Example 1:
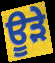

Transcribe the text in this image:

ਊੜੇ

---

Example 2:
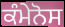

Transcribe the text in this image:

ਕੰਮੇਨੋਸ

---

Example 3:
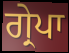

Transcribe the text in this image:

ਗ੍ਰੇਪਾ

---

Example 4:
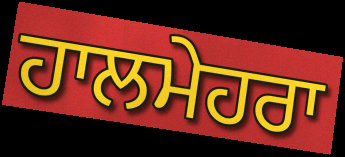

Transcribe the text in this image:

ਹਾਲਮੇਹਰਾ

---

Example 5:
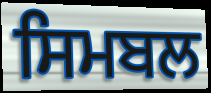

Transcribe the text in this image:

ਸਿਮਬਲ